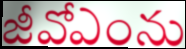
జీవోఎంను